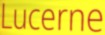
Lucerne